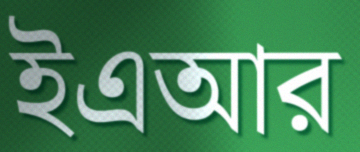
ইএআর